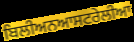
ਬਿਲੀਅਨਆਸਟਰੇਲੀਆ